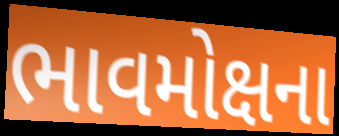
ભાવમોક્ષના